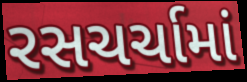
રસચર્ચામાં